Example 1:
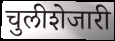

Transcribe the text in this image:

चुलीशेजारी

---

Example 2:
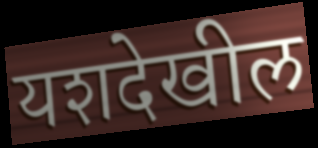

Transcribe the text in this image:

यशदेखील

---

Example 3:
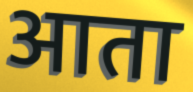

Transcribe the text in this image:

आता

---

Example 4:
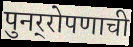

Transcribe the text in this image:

पुनर्रोपणाची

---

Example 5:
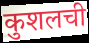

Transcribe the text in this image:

कुशलची